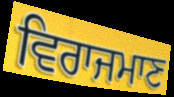
ਵਿਰਾਜਮਾਣ